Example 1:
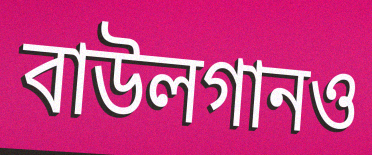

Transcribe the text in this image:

বাউলগানও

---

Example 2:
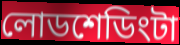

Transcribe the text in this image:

লোডশেডিংটা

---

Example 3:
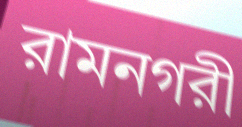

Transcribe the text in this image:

রামনগরী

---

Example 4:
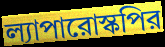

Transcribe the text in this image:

ল্যাপারোস্কপির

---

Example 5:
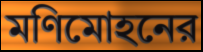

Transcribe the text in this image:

মণিমোহনের